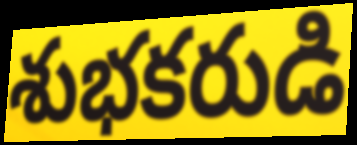
శుభకరుడి